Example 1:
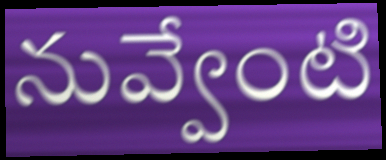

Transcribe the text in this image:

నువ్వేంటి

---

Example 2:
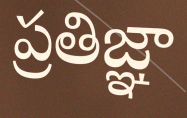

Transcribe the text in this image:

ప్రతిజ్ఞా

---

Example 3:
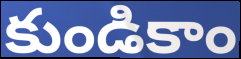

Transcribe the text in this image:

కుండికాం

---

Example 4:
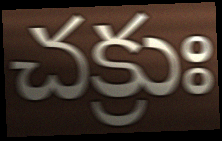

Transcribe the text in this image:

చక్రుః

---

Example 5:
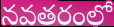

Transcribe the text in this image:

నవతరంలో